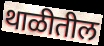
थाळीतील